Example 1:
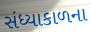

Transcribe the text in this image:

સંધ્યાકાળના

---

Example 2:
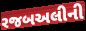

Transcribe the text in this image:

રજબઅલીની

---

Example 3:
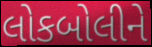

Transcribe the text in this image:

લોકબોલીને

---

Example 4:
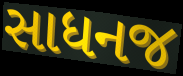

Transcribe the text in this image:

સાધનજ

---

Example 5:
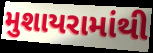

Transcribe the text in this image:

મુશાયરામાંથી